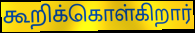
கூறிக்கொள்கிறார்